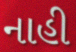
નાહી